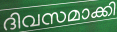
ദിവസമാക്കി